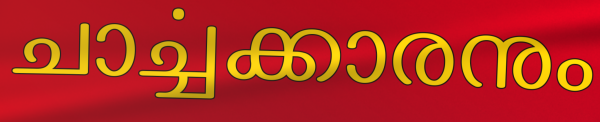
ചാൎച്ചക്കാരനും